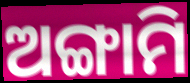
ଅଙ୍ଗାମି